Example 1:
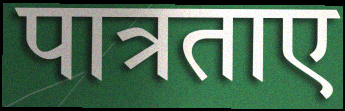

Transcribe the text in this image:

पात्रताए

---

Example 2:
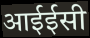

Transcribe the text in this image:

आईईसी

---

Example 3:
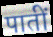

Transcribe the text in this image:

पातीं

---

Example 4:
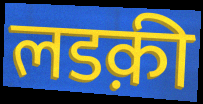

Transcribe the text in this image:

लडक़ी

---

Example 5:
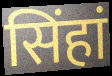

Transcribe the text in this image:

सिंहां